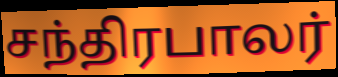
சந்திரபாலர்